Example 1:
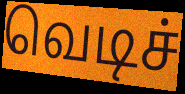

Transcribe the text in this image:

வெடிச்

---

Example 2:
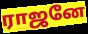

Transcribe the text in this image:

ராஜனே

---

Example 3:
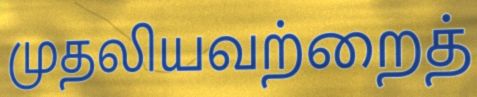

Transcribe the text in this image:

முதலியவற்றைத்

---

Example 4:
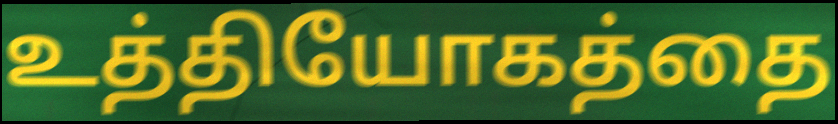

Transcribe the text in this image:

உத்தியோகத்தை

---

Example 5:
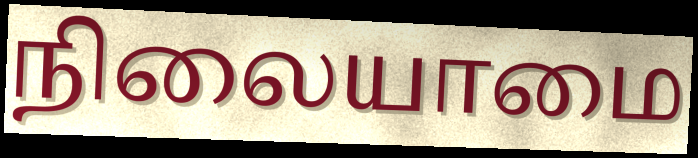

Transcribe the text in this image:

நிலையாமை